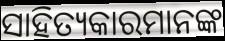
ସାହିତ୍ୟକାରମାନଙ୍କ